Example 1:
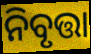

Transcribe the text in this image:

ନିବୃତ୍ତା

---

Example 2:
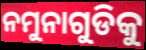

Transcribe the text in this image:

ନମୁନାଗୁଡିକୁ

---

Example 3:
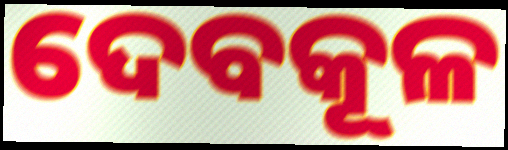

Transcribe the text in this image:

ଦେବକୂଳ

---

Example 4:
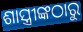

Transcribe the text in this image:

ଶାସ୍ତ୍ରୀଙ୍କଠାରୁ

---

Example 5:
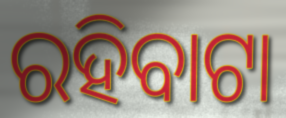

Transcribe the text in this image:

ରହିବାଟା